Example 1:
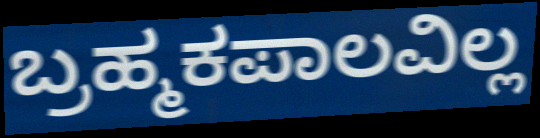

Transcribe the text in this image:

ಬ್ರಹ್ಮಕಪಾಲವಿಲ್ಲ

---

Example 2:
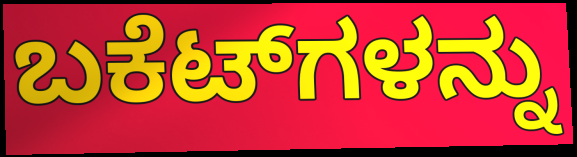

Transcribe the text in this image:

ಬಕೆಟ್‌ಗಳನ್ನು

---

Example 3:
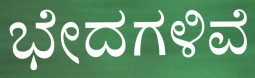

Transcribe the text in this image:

ಭೇದಗಳಿವೆ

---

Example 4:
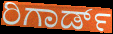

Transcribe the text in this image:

ರಿಗಾರ್ಡ್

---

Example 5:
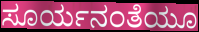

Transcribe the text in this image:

ಸೂರ್ಯನಂತೆಯೂ